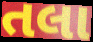
તલા